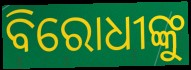
ବିରୋଧୀଙ୍କୁ